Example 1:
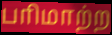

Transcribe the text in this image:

பரிமாற்ற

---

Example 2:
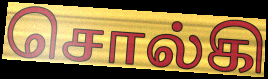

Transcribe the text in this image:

சொல்கி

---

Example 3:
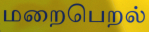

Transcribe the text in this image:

மறைபெறல்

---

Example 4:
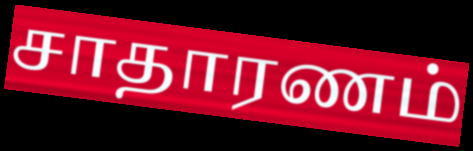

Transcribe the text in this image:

சாதாரணம்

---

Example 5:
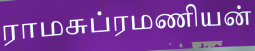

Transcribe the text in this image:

ராமசுப்ரமணியன்